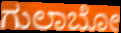
ಗುಲಾಬೋ